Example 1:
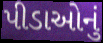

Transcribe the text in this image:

પીડાઓનું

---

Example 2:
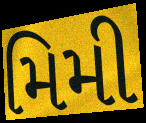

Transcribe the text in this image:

મિમી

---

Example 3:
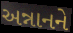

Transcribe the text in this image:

અન્નાનને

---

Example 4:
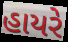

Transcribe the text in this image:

હાયરે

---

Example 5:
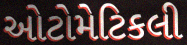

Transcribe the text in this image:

ઓટોમેટિકલી